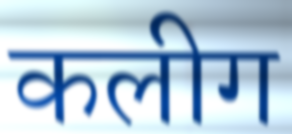
कलीग